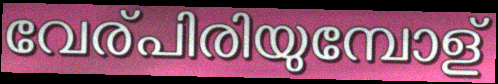
വേര്പിരിയുമ്പോള്